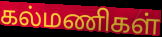
கல்மணிகள்